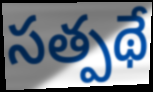
సత్పథే